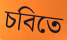
চবিতে